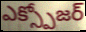
ఎక్స్పోజర్